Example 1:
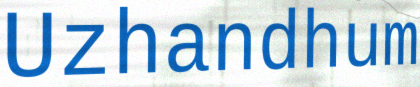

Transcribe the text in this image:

Uzhandhum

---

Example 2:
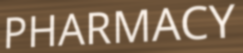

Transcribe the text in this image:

PHARMACY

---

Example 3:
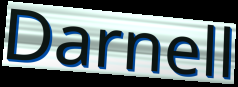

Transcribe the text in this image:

Darnell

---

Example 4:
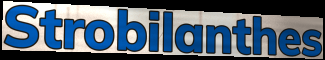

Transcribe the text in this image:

Strobilanthes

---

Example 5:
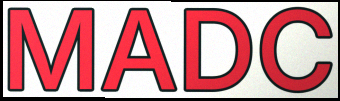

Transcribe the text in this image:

MADC